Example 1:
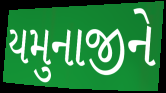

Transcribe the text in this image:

યમુનાજીને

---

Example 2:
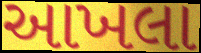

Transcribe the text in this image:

આખલા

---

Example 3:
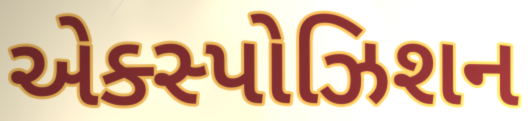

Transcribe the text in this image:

એક્સ્પોઝિશન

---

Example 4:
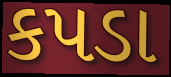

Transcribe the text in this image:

કપડા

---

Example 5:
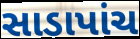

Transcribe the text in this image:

સાડાપાંચ